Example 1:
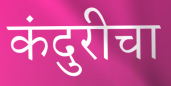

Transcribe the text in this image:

कंदुरीचा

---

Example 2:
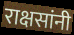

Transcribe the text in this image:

राक्षसांनी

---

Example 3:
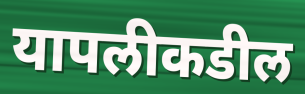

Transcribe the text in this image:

यापलीकडील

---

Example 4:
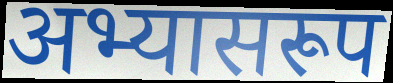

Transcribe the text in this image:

अभ्यासरूप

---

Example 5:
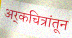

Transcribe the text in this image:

अर्कचित्रांतून